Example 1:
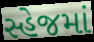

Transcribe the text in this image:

સ્હેજમાં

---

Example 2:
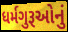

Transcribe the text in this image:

ધર્મગુરૂઓનું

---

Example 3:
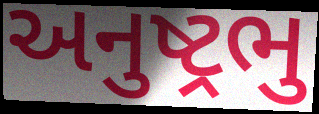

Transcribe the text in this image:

અનુષ્ટ્રભુ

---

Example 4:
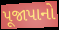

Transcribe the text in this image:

પૂજાપાનો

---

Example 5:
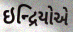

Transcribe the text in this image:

ઇન્દ્રિયોએ